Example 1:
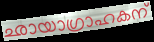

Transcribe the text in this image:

ഛായാഗ്രാഹകന്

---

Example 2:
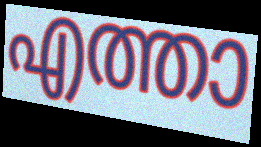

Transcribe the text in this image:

എത്താ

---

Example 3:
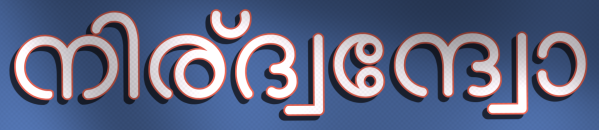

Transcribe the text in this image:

നിര്ദ്വന്ദ്വോ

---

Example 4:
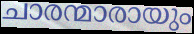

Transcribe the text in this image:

ചാരന്മാരായും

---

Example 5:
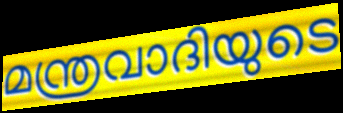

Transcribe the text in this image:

മന്ത്രവാദിയുടെ